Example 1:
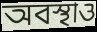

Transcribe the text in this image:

অবস্থাও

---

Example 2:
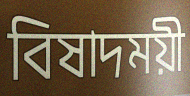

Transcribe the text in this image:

বিষাদময়ী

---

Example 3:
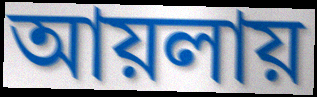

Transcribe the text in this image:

আয়লায়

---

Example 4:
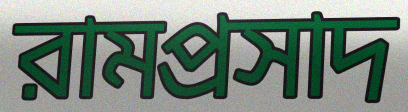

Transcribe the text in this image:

রামপ্রসাদ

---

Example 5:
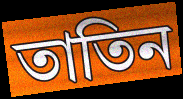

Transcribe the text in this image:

তাতিন